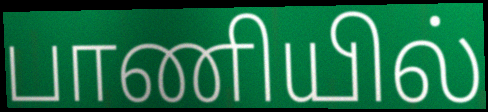
பாணியில்